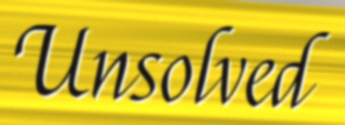
Unsolved